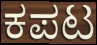
ಕಪಟ